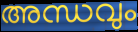
അന്ധവും